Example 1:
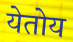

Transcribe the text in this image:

येतोय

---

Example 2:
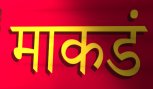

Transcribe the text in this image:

माकडं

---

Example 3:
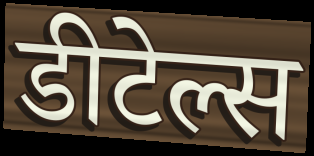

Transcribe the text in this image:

डीटेल्स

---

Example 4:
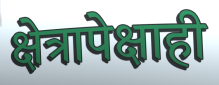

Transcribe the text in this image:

क्षेत्रापेक्षाही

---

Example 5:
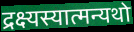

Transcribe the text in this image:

द्रक्ष्यस्यात्मन्यथो